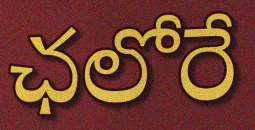
ఛలోరే